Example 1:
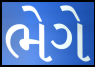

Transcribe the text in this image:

ભેગે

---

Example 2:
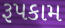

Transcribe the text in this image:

રૂપકામ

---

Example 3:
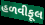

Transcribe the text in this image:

હળવીફૂલ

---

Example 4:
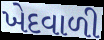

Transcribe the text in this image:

ખેદવાળી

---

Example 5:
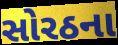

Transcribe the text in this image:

સોરઠના